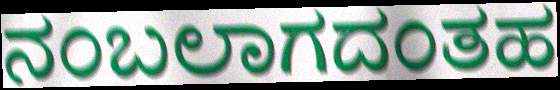
ನಂಬಲಾಗದಂತಹ